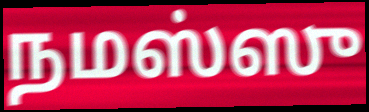
நமஸ்ஸு